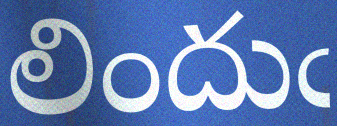
లిందుఁ